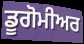
ਡੂਗੋਮੀਅਰ